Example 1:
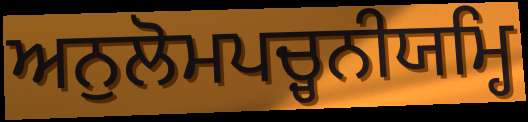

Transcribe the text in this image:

ਅਨੁਲੋਮਪਚ੍ਚਨੀਯਮ੍ਹਿ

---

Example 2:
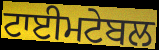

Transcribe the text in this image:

ਟਾਈਮਟੇਬਲ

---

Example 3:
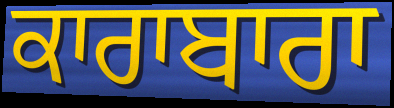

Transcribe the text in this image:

ਕਾਰਾਬਾਰਾ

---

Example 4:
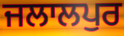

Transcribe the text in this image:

ਜਲਾਲਪੁਰ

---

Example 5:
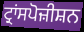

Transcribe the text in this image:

ਟ੍ਰਾਂਸਪੋਜ਼ੀਸ਼ਨ